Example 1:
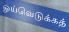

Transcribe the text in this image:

ஓய்வெடுக்கத்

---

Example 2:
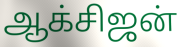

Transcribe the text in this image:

ஆக்சிஜன்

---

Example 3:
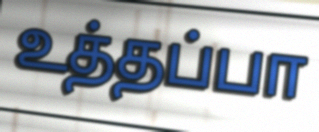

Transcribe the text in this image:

உத்தப்பா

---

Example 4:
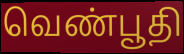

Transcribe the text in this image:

வெண்பூதி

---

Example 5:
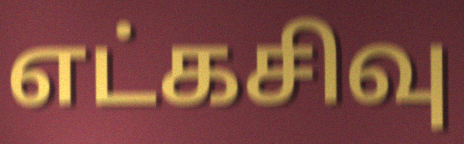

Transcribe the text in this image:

எட்கசிவு